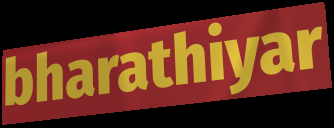
bharathiyar